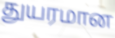
துயரமான